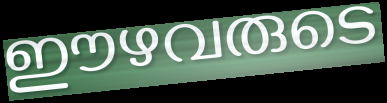
ഈഴവരുടെ